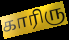
காரிரு